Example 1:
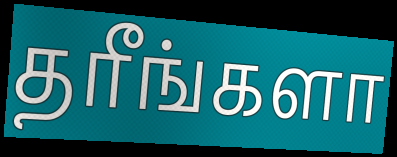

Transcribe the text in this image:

தரீங்களா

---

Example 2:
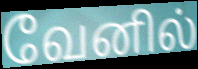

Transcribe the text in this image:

வேனில்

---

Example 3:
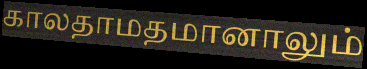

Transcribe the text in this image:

காலதாமதமானாலும்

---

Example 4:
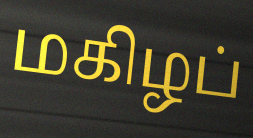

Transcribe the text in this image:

மகிழப்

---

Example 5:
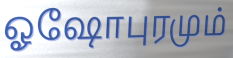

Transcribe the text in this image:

ஓஷோபுரமும்